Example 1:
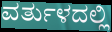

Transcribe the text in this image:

ವರ್ತುಳದಲ್ಲಿ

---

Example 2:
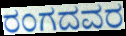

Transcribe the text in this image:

ರಂಗದವರ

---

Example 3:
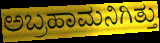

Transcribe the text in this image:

ಅಬ್ರಹಾಮನಿಗಿತ್ತು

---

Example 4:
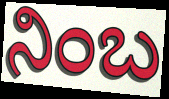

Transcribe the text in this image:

ನಿಂಬ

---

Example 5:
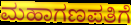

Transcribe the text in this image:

ಮಹಾಗಣಪತಿಗೆ